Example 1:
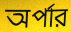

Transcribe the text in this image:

অর্পার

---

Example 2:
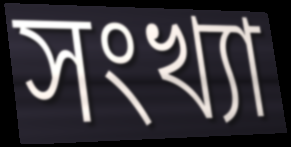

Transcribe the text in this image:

সংখ্যা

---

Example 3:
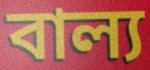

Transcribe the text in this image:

বাল্য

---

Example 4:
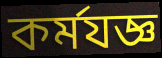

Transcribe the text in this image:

কর্মযজ্ঞ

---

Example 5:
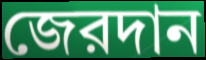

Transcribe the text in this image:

জেরদান